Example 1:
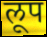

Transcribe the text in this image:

लूप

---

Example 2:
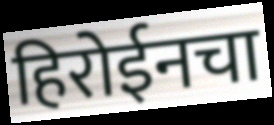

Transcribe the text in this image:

हिरोईनचा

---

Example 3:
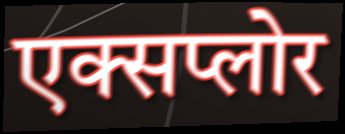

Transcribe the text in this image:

एक्‍सप्लोर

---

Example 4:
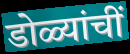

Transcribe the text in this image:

डोळ्यांचीं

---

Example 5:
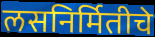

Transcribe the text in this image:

लसनिर्मितीचे